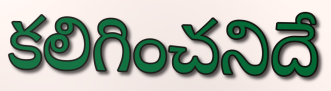
కలిగించనిదే